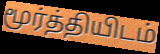
மூர்த்தியிடம்